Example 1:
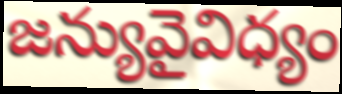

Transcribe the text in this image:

జన్యువైవిధ్యం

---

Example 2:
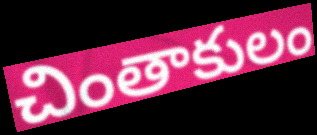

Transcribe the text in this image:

చింతాకులం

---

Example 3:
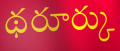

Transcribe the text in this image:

థరూర్కు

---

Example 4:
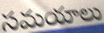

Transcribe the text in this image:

సమయాలు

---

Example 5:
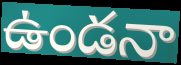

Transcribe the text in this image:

ఉండనా